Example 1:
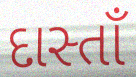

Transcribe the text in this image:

દાસ્તાઁ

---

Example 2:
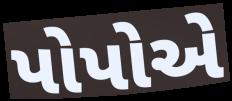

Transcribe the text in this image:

પોપોએ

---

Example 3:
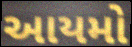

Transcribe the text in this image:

આયમો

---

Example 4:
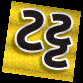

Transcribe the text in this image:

ટટ્ટ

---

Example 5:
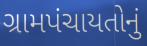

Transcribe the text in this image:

ગ્રામપંચાયતોનું